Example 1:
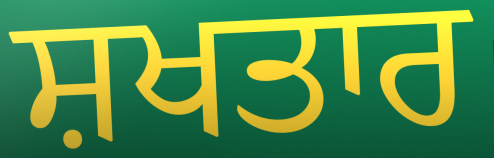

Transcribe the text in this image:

ਸ਼ਖਤਾਰ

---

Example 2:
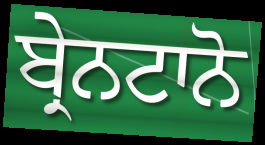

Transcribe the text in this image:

ਬ੍ਰੇਨਟਾਨੋ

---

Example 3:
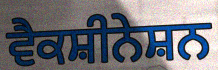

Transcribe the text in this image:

ਵੈਕਸ਼ੀਨੇਸ਼ਨ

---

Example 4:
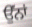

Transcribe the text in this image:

ਉਂੱਨਾਂ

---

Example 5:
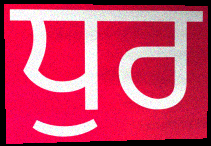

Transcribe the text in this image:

ਧੁਰ